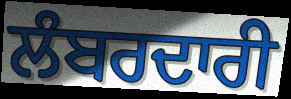
ਲੰਬਰਦਾਰੀ